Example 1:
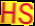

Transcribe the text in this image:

HS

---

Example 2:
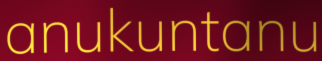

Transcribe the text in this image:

anukuntanu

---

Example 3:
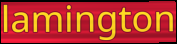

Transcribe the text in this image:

lamington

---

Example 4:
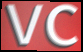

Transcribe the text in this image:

vc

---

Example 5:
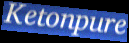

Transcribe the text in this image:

Ketonpure